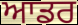
ਆਡਰ